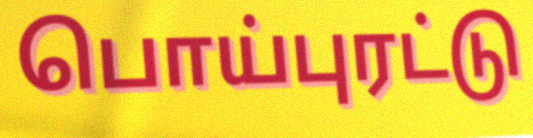
பொய்புரட்டு